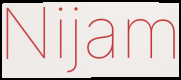
Nijam